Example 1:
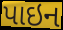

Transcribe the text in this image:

પાઇન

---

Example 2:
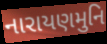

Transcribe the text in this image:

નારાયણમુનિ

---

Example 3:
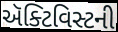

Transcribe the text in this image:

ઍક્ટિવિસ્ટની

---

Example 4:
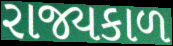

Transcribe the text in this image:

રાજ્યકાળ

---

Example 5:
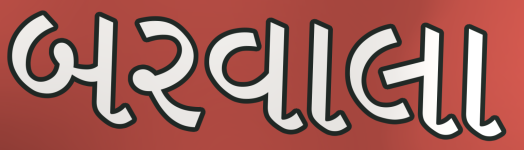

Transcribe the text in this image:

બરવાલા